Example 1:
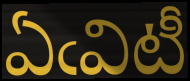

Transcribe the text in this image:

ఏఁవిటీ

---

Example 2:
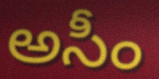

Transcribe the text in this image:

అసీం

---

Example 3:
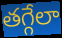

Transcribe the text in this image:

తగ్గేలా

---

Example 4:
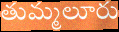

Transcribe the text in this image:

తుమ్మలూరు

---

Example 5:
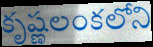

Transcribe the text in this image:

కృష్ణలంకలోని